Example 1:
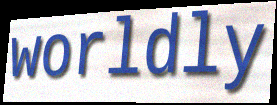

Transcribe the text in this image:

worldly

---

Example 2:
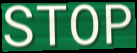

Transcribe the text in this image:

STOP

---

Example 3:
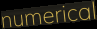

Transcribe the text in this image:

numerical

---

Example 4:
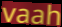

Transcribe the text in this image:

vaah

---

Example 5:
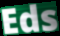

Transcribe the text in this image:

Eds